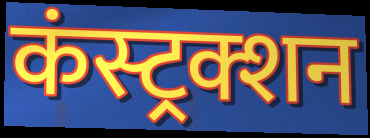
कंस्‍ट्रक्‍शन